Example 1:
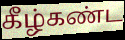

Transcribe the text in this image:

கீழ்கண்ட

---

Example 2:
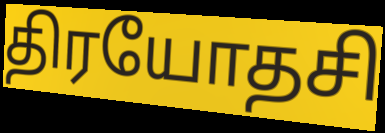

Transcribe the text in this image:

திரயோதசி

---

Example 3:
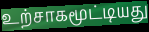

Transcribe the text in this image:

உற்சாகமூட்டியது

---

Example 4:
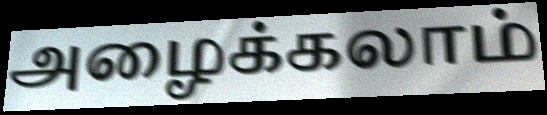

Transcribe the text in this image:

அழைக்கலாம்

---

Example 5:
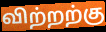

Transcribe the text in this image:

விற்றற்கு